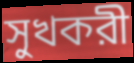
সুখকরী